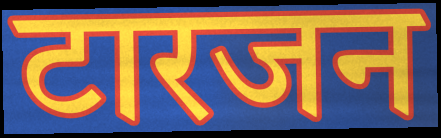
टारजन